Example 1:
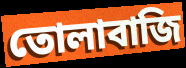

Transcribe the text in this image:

তোলাবাজি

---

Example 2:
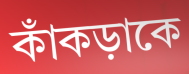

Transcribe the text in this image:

কাঁকড়াকে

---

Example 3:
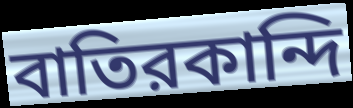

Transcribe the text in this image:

বাতিরকান্দি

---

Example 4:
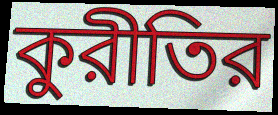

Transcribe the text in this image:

কুরীতির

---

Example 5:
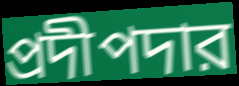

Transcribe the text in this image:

প্রদীপদার